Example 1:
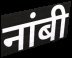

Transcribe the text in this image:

नांबी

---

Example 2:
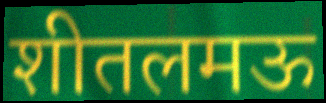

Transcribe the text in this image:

शीतलमऊ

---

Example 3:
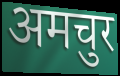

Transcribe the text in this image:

अमचुर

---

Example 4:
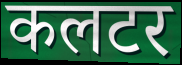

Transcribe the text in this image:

कलटर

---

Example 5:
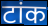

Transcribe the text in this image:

टांक